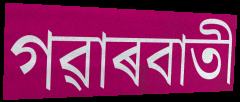
গৱাৰবাতী